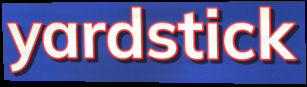
yardstick